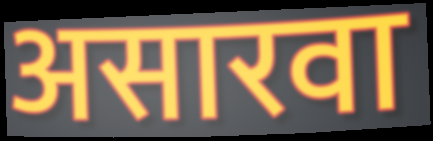
असारवा